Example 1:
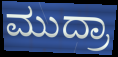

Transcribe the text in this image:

ಮುದ್ರಾ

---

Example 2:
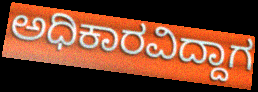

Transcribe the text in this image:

ಅಧಿಕಾರವಿದ್ದಾಗ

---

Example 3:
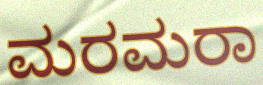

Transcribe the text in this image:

ಮರಮರಾ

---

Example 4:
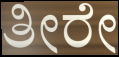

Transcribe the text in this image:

ತೀರೇ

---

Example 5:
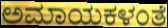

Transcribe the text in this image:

ಅಮಾಯಕಳಂತೆ